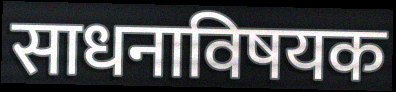
साधनाविषयक